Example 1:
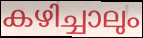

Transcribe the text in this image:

കഴിച്ചാലും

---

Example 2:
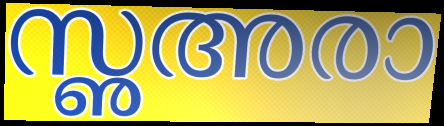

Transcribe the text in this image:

സൢഅരാ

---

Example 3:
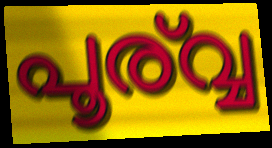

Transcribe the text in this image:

പൂര്വ്വ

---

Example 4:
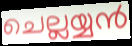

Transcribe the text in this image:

ചെല്ലയ്യൻ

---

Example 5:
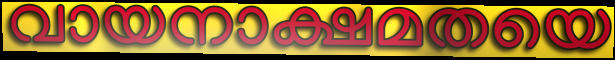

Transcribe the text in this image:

വായനാക്ഷമതയെ